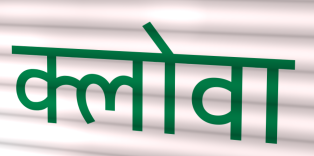
क्लोवा